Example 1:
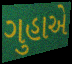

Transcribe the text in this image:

ગુહાએ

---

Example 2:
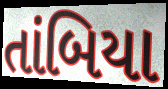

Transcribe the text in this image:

તાંબિયા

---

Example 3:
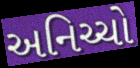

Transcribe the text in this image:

અનિચ્ચો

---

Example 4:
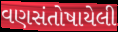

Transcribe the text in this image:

વણસંતોષાયેલી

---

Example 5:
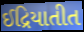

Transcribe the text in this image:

ઈદ્રિયાતીત